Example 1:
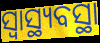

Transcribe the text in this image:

ସ୍ଵାସ୍ଥ୍ୟବସ୍ଥା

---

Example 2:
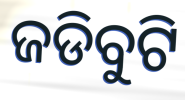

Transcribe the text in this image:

ଜଡିବୁଟି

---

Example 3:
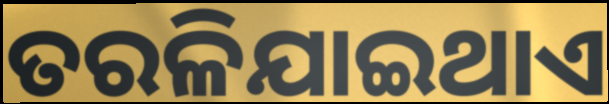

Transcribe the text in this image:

ତରଳିଯାଇଥାଏ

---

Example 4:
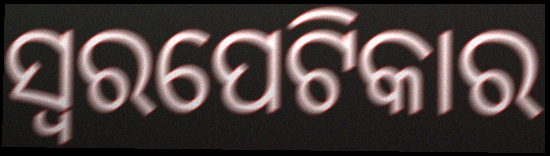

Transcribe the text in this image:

ସ୍ଵରପେଟିକାର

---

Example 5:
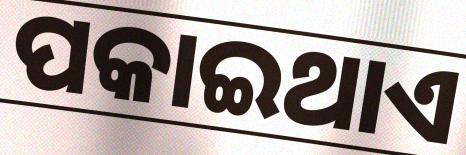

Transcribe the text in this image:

ପକାଇଥାଏ